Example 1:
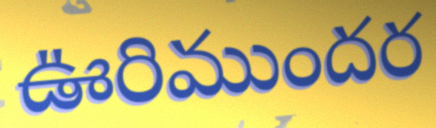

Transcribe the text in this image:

ఊరిముందర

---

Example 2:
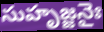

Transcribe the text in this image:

సుహృజ్జనైః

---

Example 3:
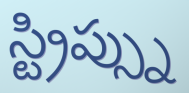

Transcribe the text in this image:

స్ట్రిప్స్ను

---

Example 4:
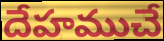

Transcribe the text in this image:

దేహముచే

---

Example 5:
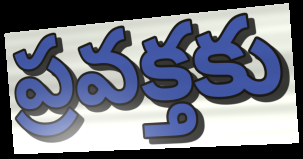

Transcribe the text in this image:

ప్రవక్తకు